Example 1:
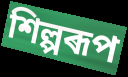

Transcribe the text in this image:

শিল্পৰূপ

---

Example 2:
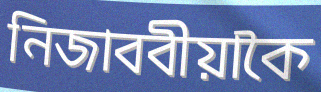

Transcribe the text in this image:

নিজাববীয়াকৈ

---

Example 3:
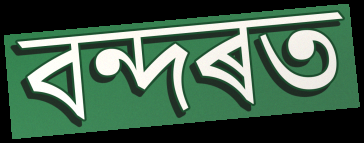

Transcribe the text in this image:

বন্দৰত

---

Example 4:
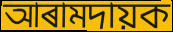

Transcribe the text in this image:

আৰামদায়ক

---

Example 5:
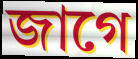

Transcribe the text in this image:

জাগে